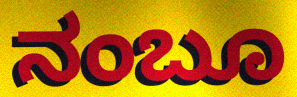
ನಂಬೂ